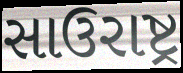
સાઉરાષ્ટ્ર